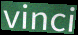
vinci